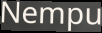
Nempu